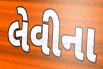
લેવીના